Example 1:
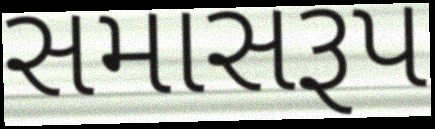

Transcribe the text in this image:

સમાસરૂપ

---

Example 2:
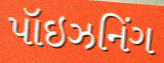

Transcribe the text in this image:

પૉઇઝનિંગ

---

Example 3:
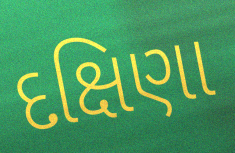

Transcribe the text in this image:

દક્ષિણા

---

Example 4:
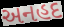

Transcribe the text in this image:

અનહદ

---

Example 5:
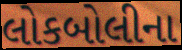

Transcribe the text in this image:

લોકબોલીના